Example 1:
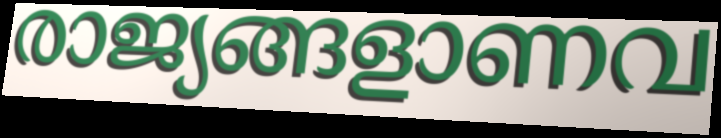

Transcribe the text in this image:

രാജ്യങ്ങളാണവ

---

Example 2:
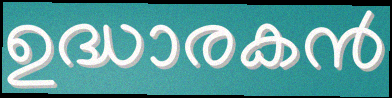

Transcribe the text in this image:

ഉദ്ധാരകൻ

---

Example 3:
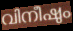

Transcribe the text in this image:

വിനീഷും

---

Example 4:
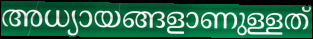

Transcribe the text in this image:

അധ്യായങ്ങളാണുള്ളത്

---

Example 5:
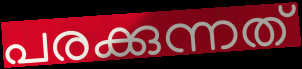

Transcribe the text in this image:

പരക്കുന്നത്